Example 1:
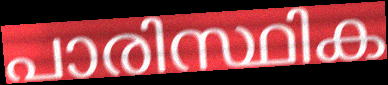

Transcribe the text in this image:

പാരിസ്ഥിക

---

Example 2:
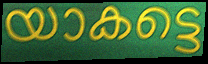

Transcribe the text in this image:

യാകട്ടെ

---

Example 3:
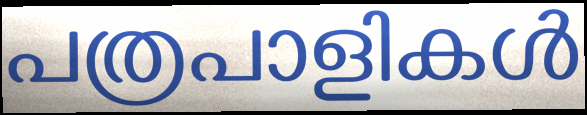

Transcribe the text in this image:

പത്രപാളികൾ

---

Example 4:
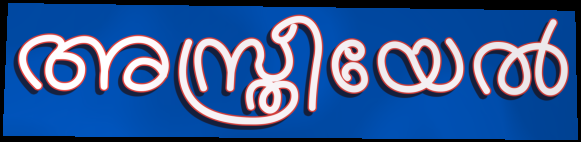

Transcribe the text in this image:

അസ്ത്രീയേൽ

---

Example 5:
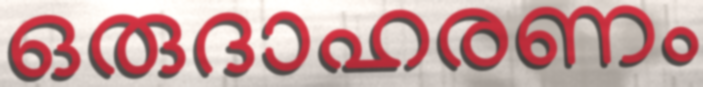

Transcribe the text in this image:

ഒരുദാഹരണം